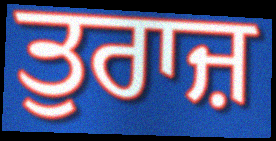
ਤੁਰਾਜ਼